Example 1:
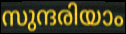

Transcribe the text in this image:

സുന്ദരിയാം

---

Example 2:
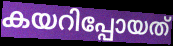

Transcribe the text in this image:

കയറിപ്പോയത്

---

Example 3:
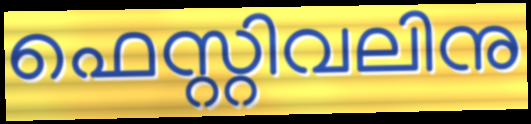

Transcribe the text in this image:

ഫെസ്റ്റിവലിനു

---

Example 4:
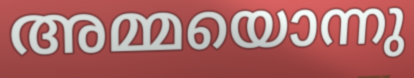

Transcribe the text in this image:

അമ്മയൊന്നു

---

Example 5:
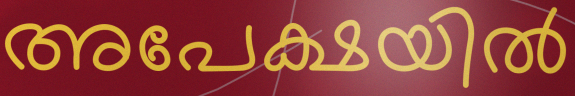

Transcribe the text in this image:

അപേക്ഷയിൽ